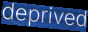
deprived